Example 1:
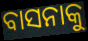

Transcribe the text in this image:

ବାସନାକୁ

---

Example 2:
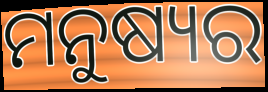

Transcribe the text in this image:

ମନୁଷ୍ୟର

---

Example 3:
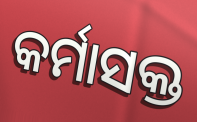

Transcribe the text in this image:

କର୍ମାସକ୍ତ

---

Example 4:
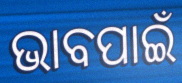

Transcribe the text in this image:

ଭାବପାଇଁ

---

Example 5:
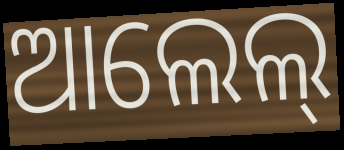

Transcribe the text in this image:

ଆଲେଲ୍